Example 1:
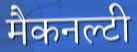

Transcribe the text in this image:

मैकनल्टी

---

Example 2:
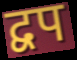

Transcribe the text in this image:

द्वप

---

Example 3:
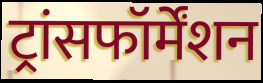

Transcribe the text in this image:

ट्रांसफॉर्मेंशन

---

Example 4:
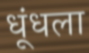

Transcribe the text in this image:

धूंधला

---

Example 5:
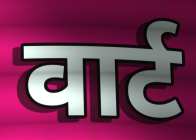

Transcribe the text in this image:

वार्ट